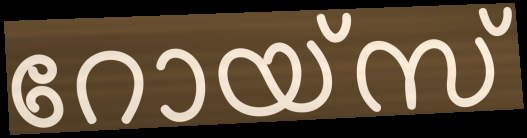
റോയ്സ്